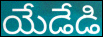
యేడేడి